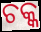
ଚକ୍କ